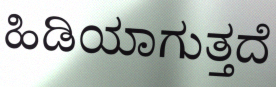
ಹಿಡಿಯಾಗುತ್ತದೆ